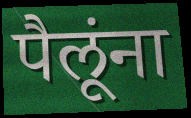
पैलूंना